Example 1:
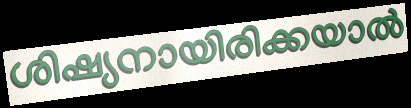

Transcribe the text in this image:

ശിഷ്യനായിരിക്കയാൽ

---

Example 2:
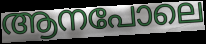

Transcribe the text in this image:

ആനപോലെ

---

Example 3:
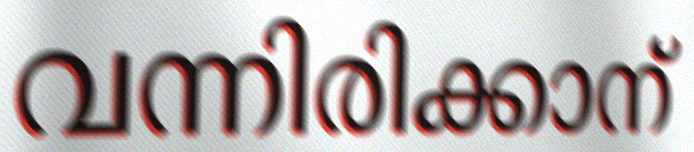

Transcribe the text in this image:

വന്നിരിക്കാന്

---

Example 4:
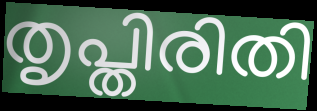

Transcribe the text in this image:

തൃപ്തിരിതി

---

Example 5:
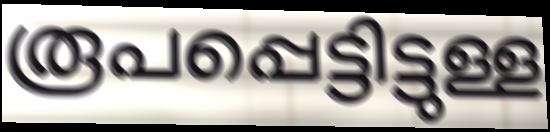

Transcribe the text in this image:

രൂപപ്പെട്ടിട്ടുള്ള